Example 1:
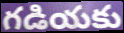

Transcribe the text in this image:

గడియకు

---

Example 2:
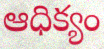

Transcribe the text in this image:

ఆధిక్యం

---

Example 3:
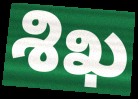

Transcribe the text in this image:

శిఖ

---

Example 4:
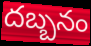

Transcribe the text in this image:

దబ్బనం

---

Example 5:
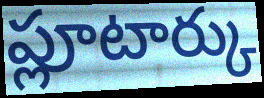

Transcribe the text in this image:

ప్లూటార్కు